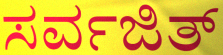
ಸರ್ವಜಿತ್